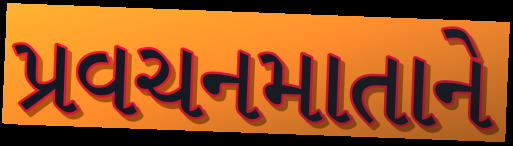
પ્રવચનમાતાને